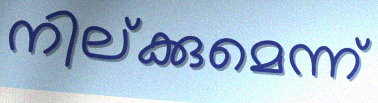
നില്ക്കുമെന്ന്